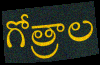
గోత్రాల